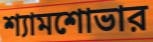
শ্যামশোভার